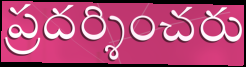
ప్రదర్శించరు